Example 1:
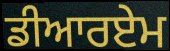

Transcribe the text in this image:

ਡੀਆਰਏਮ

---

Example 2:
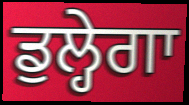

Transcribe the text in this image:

ਡੁਲ੍ਹੇਗਾ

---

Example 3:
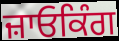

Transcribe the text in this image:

ਜ਼ਾਓਕਿੰਗ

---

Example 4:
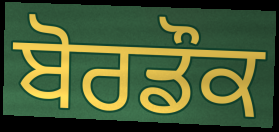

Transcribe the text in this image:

ਬੋਰਡੌਕ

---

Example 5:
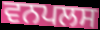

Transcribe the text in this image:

ਵਨਪਲਸ